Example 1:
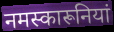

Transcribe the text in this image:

नमस्कारूनियां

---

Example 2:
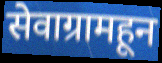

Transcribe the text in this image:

सेवाग्रामहून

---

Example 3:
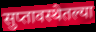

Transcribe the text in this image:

सुप्तावस्थेतल्या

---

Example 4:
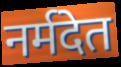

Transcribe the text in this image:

नर्मदेत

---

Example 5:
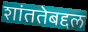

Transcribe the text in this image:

शांततेबद्दल